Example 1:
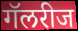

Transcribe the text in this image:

गॅलरीज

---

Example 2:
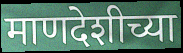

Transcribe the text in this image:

माणदेशीच्या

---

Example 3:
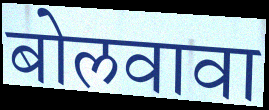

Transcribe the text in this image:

बोलवावा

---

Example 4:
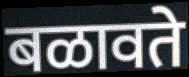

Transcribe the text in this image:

बळावते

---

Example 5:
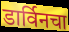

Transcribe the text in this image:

डार्विनचा